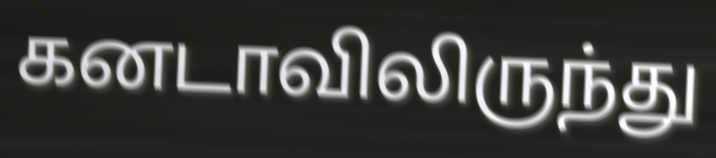
கனடாவிலிருந்து